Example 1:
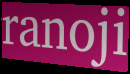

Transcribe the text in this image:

ranoji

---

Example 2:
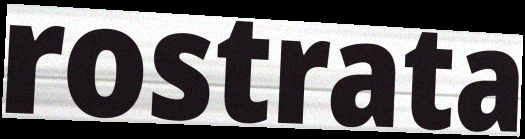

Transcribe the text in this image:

rostrata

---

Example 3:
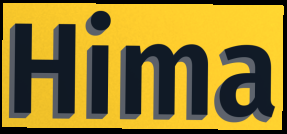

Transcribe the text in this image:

Hima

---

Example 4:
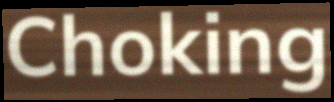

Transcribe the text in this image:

Choking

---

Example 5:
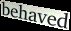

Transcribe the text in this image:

behaved